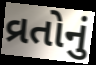
વ્રતોનું